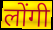
लोंगी